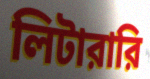
লিটারারি